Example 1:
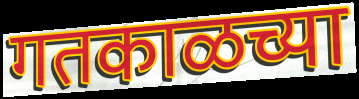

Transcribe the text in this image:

गतकाळच्या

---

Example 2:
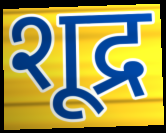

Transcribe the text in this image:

शूद्र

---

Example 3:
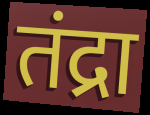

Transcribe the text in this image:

तंद्रा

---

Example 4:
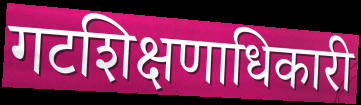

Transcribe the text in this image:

गटशिक्षणाधिकारी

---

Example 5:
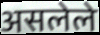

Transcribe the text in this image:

असलेले